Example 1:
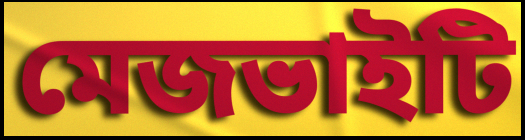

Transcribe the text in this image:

মেজভাইটি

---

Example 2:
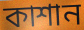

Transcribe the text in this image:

কাশান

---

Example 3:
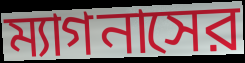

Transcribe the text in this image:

ম্যাগনাসের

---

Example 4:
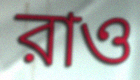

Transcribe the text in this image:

রাও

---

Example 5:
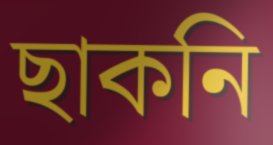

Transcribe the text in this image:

ছাকনি